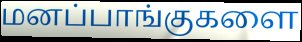
மனப்பாங்குகளை